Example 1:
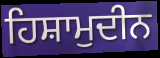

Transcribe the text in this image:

ਹਿਸ਼ਾਮੁਦੀਨ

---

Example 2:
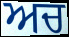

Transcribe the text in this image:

ਅਚ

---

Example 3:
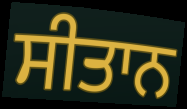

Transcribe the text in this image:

ਸੀਤਾਨ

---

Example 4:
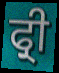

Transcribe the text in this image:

ਫ੍ਰੀ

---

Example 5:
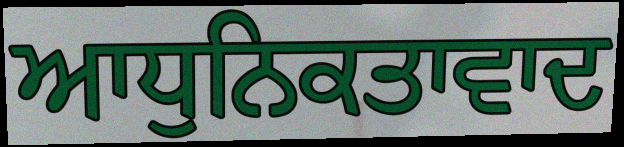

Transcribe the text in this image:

ਆਧੁਨਿਕਤਾਵਾਦ